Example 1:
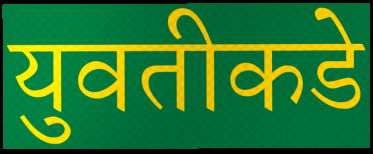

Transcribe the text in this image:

युवतीकडे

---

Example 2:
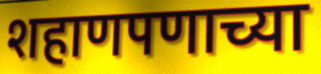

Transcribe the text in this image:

शहाणपणाच्या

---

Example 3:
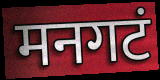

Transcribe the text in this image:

मनगटं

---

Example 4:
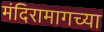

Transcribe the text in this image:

मंदिरामागच्या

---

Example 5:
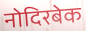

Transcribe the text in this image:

नोदिरबेक